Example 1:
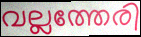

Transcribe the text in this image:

വല്ലത്തേരി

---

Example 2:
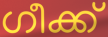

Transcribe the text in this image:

ഗീക്ക്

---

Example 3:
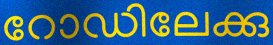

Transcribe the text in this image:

റോഡിലേക്കു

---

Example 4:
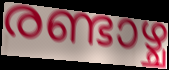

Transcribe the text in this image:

രണ്ടാഴ്ച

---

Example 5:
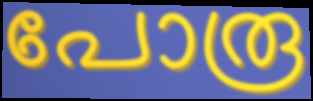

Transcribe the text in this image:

പോരൂ